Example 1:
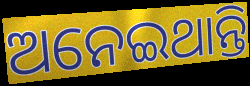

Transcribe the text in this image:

ଅନେଇଥାନ୍ତି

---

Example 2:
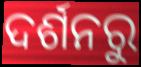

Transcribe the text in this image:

ଦର୍ଶନରୁ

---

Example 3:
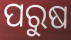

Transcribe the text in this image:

ପରୁଷ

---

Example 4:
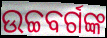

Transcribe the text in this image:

ଉଚ୍ଚବର୍ଗଙ୍କ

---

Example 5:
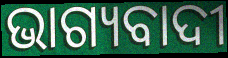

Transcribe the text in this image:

ଭାଗ୍ୟବାଦୀ